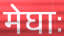
मेघाः